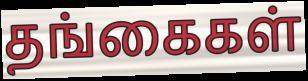
தங்கைகள்